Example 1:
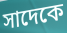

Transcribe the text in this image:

সাদেকে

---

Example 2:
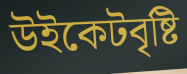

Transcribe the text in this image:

উইকেটবৃষ্টি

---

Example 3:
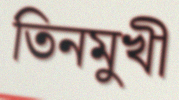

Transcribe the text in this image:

তিনমুখী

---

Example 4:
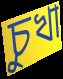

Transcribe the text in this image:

চুখা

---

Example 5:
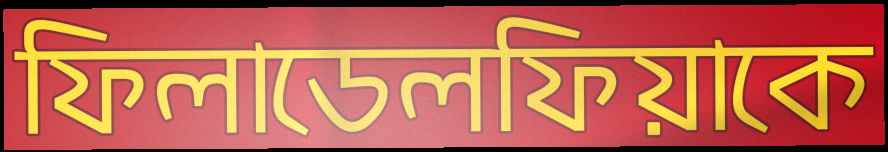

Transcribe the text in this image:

ফিলাডেলফিয়াকে